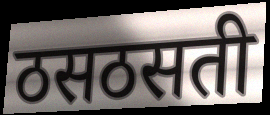
ठसठसती